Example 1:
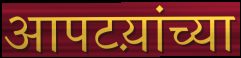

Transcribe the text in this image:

आपटय़ांच्या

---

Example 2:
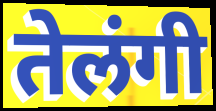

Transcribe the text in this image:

तेलंगी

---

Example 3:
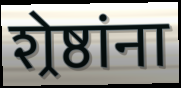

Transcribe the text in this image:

श्रेष्ठांना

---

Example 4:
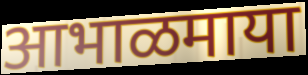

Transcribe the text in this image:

आभाळमाया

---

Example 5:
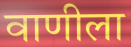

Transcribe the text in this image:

वाणीला